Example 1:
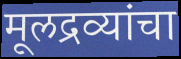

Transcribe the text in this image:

मूलद्रव्यांचा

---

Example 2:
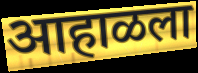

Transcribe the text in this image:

आहाळला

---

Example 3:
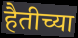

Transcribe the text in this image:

हैतीच्या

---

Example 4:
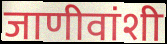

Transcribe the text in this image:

जाणीवांशी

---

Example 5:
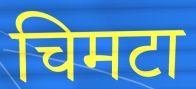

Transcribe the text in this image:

चिमटा